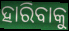
ହାରିବାକୁ